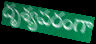
దృశ్యపరంగా